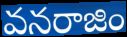
వనరాజిం